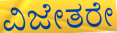
ವಿಜೇತರೇ